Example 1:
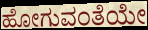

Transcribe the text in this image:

ಹೋಗುವಂತೆಯೇ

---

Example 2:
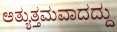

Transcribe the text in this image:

ಅತ್ಯುತ್ತಮವಾದದ್ದು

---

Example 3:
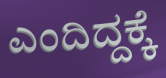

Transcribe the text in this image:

ಎಂದಿದ್ದಕ್ಕೆ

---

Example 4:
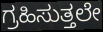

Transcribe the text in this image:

ಗ್ರಹಿಸುತ್ತಲೇ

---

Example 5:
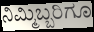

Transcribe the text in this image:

ನಿಮ್ಮಿಬ್ಬರಿಗೂ